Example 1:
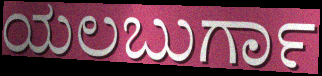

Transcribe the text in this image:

ಯಲಬುರ್ಗಾ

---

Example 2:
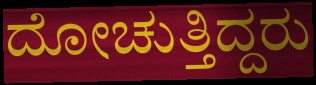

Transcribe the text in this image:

ದೋಚುತ್ತಿದ್ದರು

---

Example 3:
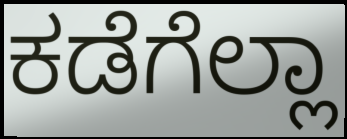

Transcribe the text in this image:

ಕಡೆಗೆಲ್ಲಾ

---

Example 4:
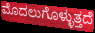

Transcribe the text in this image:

ಮೊದಲುಗೊಳ್ಳುತ್ತದೆ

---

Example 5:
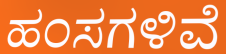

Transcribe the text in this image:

ಹಂಸಗಳಿವೆ